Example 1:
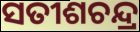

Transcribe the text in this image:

ସତୀଶଚନ୍ଦ୍ର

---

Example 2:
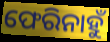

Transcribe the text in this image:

ଫେରିନାହୁଁ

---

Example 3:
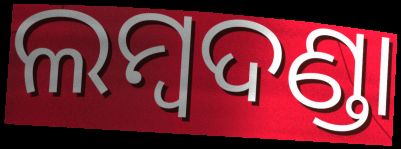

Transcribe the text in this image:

ଲମ୍ୱଦଣ୍ଡା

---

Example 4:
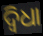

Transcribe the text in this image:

ଦ୍ବିଧା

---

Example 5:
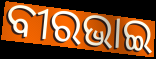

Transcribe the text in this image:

ବୀରଭାଇ